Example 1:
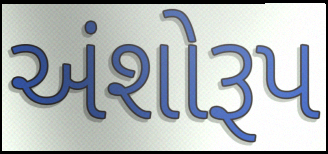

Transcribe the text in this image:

અંશોરૂપ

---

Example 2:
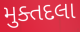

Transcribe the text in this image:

મુક્તદલા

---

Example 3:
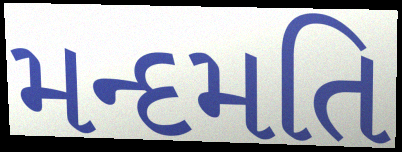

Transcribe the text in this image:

મન્દમતિ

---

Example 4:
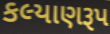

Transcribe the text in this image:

કલ્યાણરૂપ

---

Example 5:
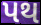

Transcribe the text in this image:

પથ